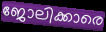
ജോലിക്കാരെ